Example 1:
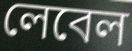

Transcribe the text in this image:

লেবেল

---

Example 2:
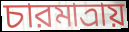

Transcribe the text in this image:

চারমাত্রায়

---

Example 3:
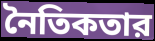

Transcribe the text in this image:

নৈতিকতার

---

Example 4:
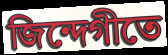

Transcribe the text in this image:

জিন্দেগীতে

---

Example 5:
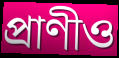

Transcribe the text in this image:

প্রাণীও